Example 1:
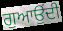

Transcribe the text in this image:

ਗੁਆਉਂਦੀ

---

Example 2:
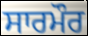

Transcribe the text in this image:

ਸਾਰਮੌਰ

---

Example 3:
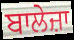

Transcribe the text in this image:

ਬਾਲੇਜ਼ਾ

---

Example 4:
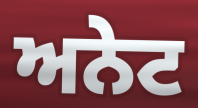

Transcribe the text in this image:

ਅਨੇਟ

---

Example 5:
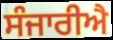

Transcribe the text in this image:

ਸੰਜਾਰੀਐ